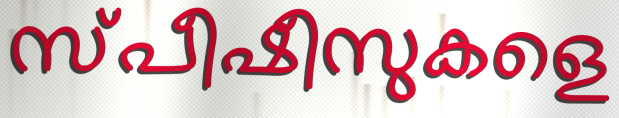
സ്പീഷീസുകളെ